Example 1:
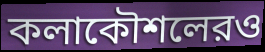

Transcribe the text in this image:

কলাকৌশলেরও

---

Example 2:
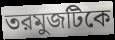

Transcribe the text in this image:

তরমুজটিকে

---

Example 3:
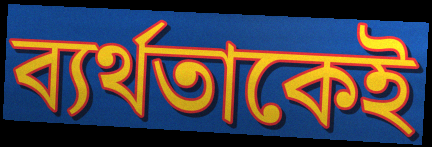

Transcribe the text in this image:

ব্যর্থতাকেই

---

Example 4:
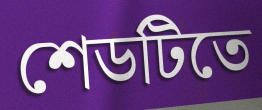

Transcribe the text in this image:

শেডটিতে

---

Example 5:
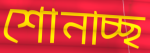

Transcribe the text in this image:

শোনাচ্ছ